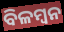
ବିଳମ୍ବନ